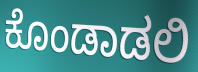
ಕೊಂಡಾಡಲಿ